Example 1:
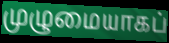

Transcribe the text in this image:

முழுமையாகப்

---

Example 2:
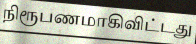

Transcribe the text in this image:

நிரூபணமாகிவிட்டது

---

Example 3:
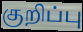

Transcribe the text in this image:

குறிப்பு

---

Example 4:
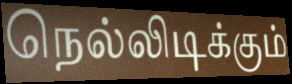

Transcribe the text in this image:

நெல்லிடிக்கும்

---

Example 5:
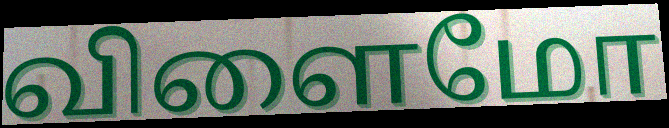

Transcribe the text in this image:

விளைமோ